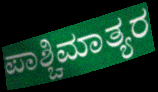
ಪಾಶ್ಚಿಮಾತ್ಯರ